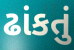
ઢાંકતું